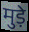
मुड़े